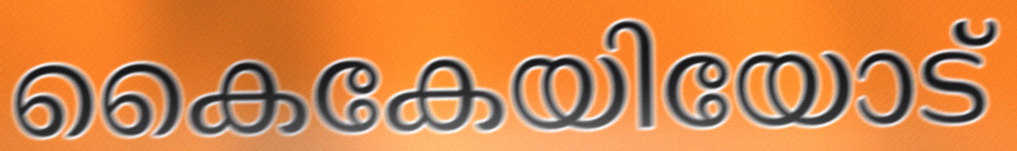
കൈകേയിയോട്